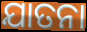
ଯାତନା